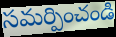
సమర్పించండి